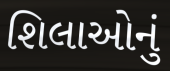
શિલાઓનું